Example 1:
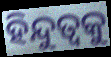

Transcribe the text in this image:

ହିନ୍ଦୁତ୍ୱକୁ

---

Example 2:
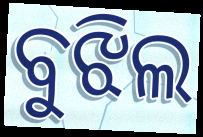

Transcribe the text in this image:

ବୁଝିଲ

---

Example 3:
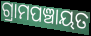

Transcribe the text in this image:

ଗ୍ରାମପଞ୍ଚାୟତ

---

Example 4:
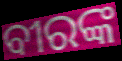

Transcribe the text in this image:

ବୀରଙ୍କ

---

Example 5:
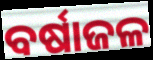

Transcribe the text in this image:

ବର୍ଷାଜଳ